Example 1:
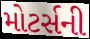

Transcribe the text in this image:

મોટર્સની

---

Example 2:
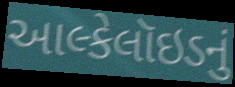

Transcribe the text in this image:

આલ્કેલૉઇડનું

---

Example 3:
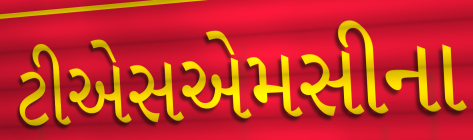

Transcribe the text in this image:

ટીએસએમસીના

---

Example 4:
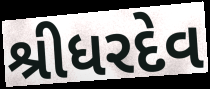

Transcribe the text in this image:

શ્રીધરદેવ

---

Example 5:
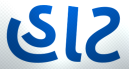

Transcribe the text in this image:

હાટ